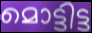
മൊട്ടിട്ട